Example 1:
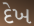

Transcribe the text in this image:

દેખ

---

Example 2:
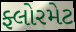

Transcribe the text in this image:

ફ્લોરમેટ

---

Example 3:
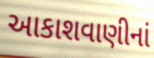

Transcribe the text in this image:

આકાશવાણીનાં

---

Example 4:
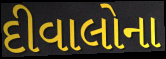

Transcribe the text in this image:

દીવાલોના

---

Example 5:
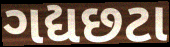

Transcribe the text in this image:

ગદ્યછટા